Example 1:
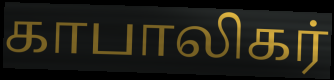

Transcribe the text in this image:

காபாலிகர்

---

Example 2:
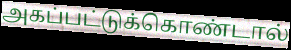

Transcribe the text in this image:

அகப்பட்டுக்கொண்டால்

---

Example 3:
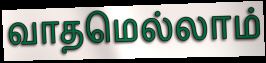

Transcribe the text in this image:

வாதமெல்லாம்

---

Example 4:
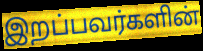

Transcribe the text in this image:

இறப்பவர்களின்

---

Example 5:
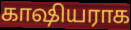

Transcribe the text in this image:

காஷியராக